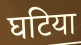
घटिया